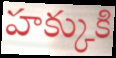
హక్కుకి